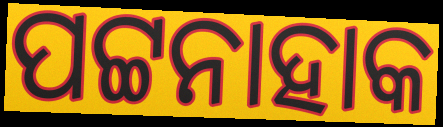
ପଟ୍ଟନାହାକ